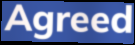
Agreed